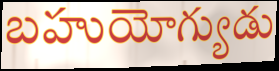
బహుయోగ్యుడు